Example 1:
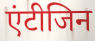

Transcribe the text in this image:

एंटीजिन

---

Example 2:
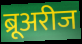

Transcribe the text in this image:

ब्रूअरीज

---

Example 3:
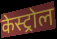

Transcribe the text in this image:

केस्ट्रोल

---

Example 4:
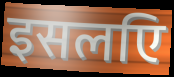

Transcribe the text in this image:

इसलएि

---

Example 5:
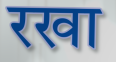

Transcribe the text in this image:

रखा